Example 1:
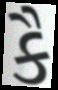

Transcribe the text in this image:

કૈ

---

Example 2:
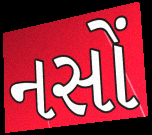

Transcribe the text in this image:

નસોં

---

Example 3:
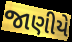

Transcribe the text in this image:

જાણીયે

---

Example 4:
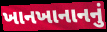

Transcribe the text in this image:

ખાનખાનાનનું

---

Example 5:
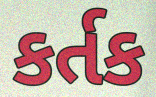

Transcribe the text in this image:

કર્તક